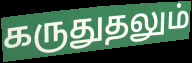
கருதுதலும்